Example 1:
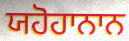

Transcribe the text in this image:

ਯਹੋਹਾਨਾਨ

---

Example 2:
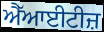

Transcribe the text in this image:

ਐੱਆਈਟੀਜ਼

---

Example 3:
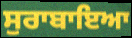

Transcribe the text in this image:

ਸੁਰਾਬਾਇਆ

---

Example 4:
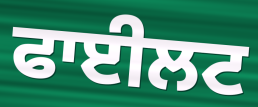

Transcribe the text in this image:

ਫਾਈਲਟ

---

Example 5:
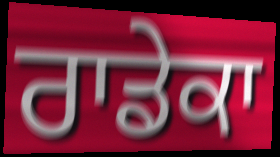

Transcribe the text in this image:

ਰਾਡੇਕਾ